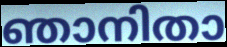
ഞാനിതാ